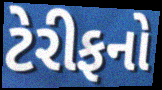
ટેરીફનો